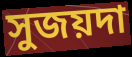
সুজয়দা